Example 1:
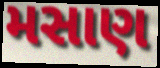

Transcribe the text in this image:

મસાણ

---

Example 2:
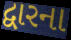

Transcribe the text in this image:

દ્વારના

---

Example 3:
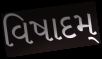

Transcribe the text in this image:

વિષાદમ્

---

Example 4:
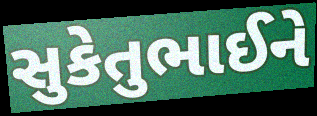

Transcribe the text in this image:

સુકેતુભાઈને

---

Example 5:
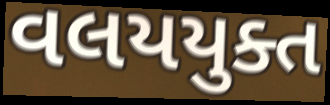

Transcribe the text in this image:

વલયયુક્ત